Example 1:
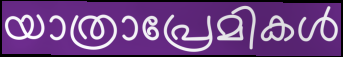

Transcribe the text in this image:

യാത്രാപ്രേമികൾ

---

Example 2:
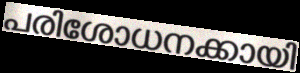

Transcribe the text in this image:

പരിശോധനക്കായി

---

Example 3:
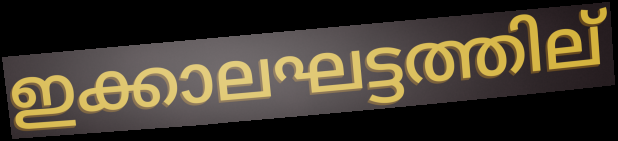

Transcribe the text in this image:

ഇക്കാലഘട്ടത്തില്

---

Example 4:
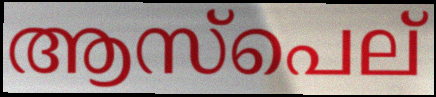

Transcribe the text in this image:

ആസ്പെല്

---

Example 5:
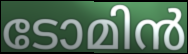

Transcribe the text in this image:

ടോമിൻ